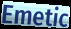
Emetic